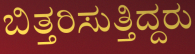
ಬಿತ್ತರಿಸುತ್ತಿದ್ದರು